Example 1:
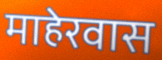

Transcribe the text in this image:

माहेरवास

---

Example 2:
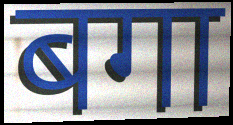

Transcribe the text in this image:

बगा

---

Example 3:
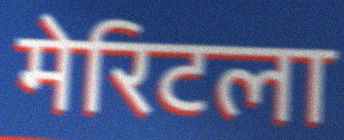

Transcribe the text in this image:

मेरिटला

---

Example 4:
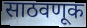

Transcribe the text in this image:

साठवणूक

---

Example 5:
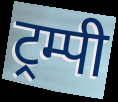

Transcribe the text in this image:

ट्रम्पी